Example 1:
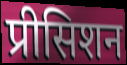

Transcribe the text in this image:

प्रीसिशन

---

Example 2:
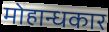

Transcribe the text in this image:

मोहान्धकार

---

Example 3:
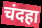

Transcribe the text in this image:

चंदहा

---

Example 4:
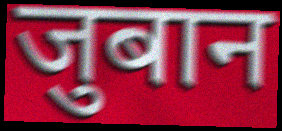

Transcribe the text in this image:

जुबान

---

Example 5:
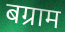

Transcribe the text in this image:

बग्राम